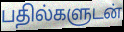
பதில்களுடன்